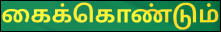
கைக்கொண்டும்